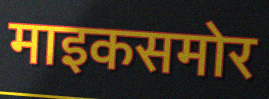
माइकसमोर